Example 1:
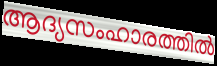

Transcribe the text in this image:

ആദ്യസംഹാരത്തിൽ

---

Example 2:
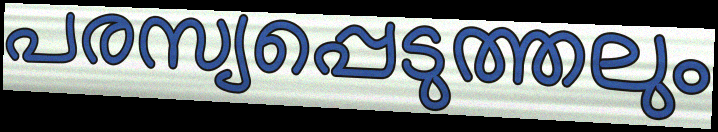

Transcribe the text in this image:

പരസ്യപ്പെടുത്തലും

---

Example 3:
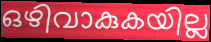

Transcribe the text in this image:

ഒഴിവാകുകയില്ല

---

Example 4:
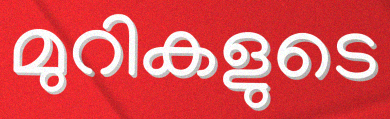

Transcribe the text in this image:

മുറികളുടെ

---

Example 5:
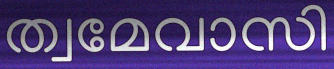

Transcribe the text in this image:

ത്വമേവാസി